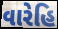
વારેહિ